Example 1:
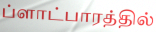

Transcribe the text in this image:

ப்ளாட்பாரத்தில்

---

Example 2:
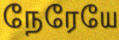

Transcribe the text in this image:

நேரேயே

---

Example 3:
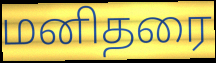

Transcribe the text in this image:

மனிதரை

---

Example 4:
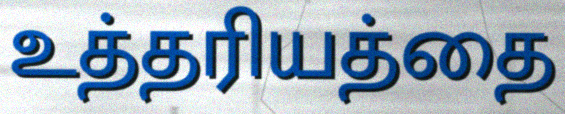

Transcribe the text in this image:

உத்தரியத்தை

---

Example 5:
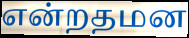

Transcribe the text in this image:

என்றதமன